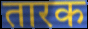
तारक